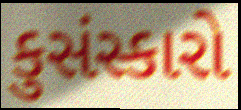
કુસંસ્કારો